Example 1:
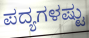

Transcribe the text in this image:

ಪದ್ಯಗಳಷ್ಟು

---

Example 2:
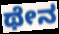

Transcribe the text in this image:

ಥೇನ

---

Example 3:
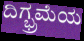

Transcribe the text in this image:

ದಿಗ್ಭ್ರಮೆಯ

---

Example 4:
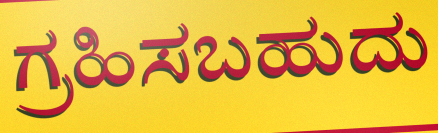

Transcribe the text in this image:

ಗ್ರಹಿಸಬಹುದು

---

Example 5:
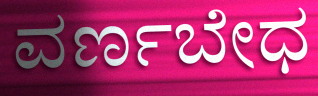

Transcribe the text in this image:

ವರ್ಣಬೇಧ